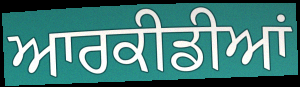
ਆਰਕੀਡੀਆਂ